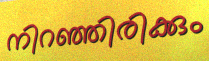
നിറഞ്ഞിരിക്കും